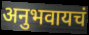
अनुभवायचं